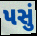
પસું